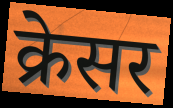
क्रेसर